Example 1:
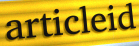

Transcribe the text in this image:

articleid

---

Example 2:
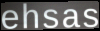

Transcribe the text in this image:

ehsas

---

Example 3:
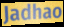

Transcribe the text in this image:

Jadhao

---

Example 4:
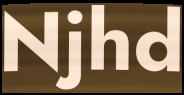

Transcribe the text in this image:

Njhd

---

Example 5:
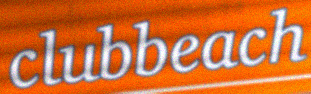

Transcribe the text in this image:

clubbeach